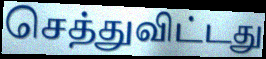
செத்துவிட்டது